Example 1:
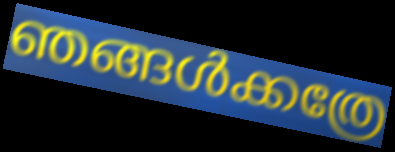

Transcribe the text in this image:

ഞങ്ങൾക്കത്രേ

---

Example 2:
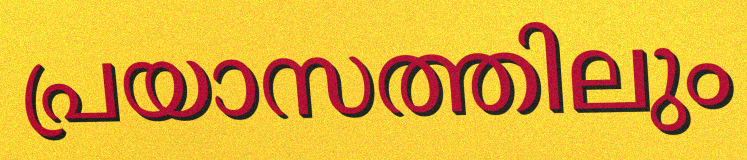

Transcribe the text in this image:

പ്രയാസത്തിലും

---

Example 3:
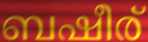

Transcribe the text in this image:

ബഷീര്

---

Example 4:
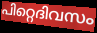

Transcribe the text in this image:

പിറ്റെദിവസം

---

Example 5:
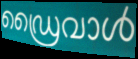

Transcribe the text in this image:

ഡ്രൈവാൾ